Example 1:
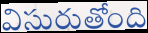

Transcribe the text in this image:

విసురుతోంది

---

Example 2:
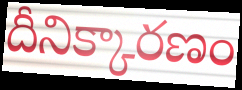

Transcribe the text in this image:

దీనిక్కారణం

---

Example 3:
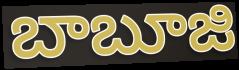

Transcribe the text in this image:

బాబూజి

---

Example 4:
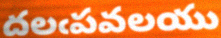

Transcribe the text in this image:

దలఁపవలయు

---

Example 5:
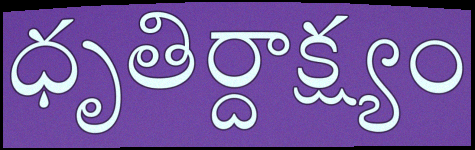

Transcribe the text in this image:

ధృతిర్దాక్ష్యం